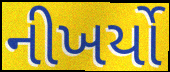
નીખર્યો